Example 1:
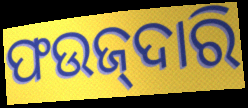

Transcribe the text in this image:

ଫଉଜ୍‌ଦାରି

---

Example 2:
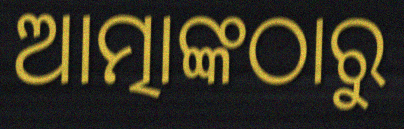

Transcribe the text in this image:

ଆତ୍ମାଙ୍କଠାରୁ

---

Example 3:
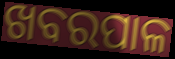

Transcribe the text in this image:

ଖବରପାଳ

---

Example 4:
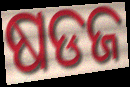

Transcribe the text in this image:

ଷଡଜ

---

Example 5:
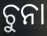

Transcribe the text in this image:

ଚୁନା